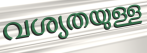
വശ്യതയുള്ള